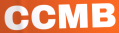
CCMB